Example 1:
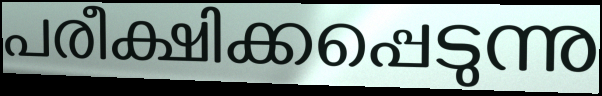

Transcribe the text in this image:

പരീക്ഷിക്കപ്പെടുന്നു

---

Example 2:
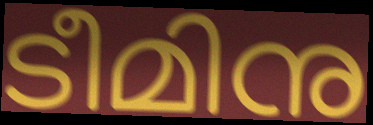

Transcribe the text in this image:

ടീമിനു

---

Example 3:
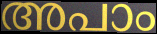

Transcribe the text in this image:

അപാം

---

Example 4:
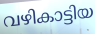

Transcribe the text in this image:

വഴികാട്ടിയ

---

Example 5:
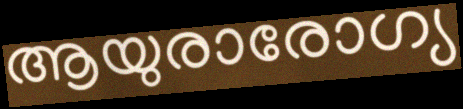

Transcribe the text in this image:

ആയുരാരോഗ്യ